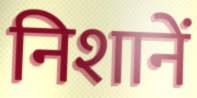
निशानें